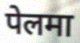
पेलमा